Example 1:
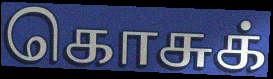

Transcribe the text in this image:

கொசுக்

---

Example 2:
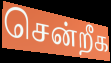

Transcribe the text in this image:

சென்றீக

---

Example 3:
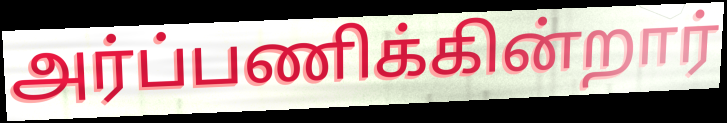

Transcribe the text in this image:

அர்ப்பணிக்கின்றார்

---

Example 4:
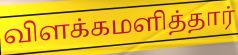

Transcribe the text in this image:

விளக்கமளித்தார்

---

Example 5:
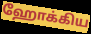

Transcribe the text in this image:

ஹோக்கிய